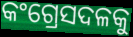
କଂଗ୍ରେସଦଳକୁ